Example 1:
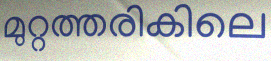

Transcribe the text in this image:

മുറ്റത്തരികിലെ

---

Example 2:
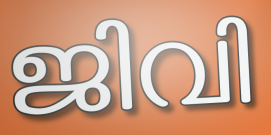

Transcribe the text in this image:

ജിവി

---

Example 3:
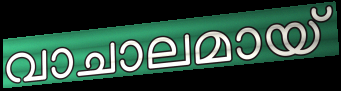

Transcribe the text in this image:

വാചാലമായ്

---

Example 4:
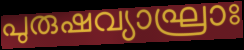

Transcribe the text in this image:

പുരുഷവ്യാഘ്രാഃ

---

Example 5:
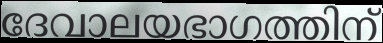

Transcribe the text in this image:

ദേവാലയഭാഗത്തിന്